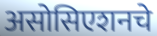
असोसिएशनचे